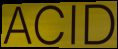
ACID